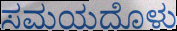
ಸಮಯದೊಳು